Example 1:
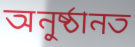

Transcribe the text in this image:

অনুষ্ঠানত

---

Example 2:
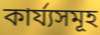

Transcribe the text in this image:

কাৰ্য্যসমূহ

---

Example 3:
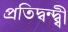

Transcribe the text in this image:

প্ৰতিদ্বন্দ্ব্বী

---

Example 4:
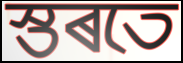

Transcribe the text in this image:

স্তৰতে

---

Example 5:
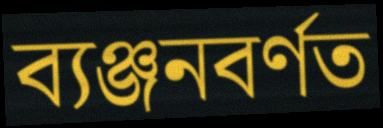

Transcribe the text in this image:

ব্যঞ্জনবৰ্ণত